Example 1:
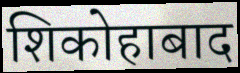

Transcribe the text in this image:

शिकोहाबाद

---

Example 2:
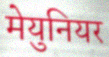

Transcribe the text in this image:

मेयुनियर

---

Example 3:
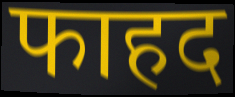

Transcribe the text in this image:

फाहद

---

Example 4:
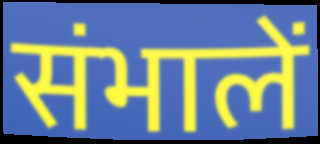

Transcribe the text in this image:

संभालें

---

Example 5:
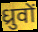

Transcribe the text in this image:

ध्रुवों